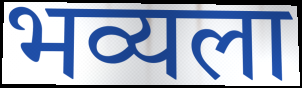
भव्यला